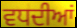
ਵਧਦੀਆਂ